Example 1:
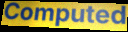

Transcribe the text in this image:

Computed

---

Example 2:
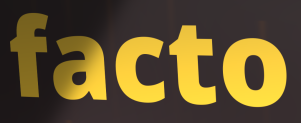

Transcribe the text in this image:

facto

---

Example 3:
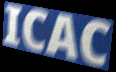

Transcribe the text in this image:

ICAC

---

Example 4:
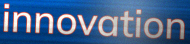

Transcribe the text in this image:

innovation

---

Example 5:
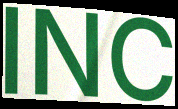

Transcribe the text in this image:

INC